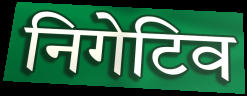
निगेटिव